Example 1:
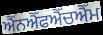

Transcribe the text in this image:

ਐੱਨਐੱਫਐੱਚਐੱਮ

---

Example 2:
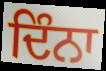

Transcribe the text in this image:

ਦਿੰਨਾ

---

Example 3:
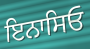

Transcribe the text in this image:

ਇਨਾਸਿਓ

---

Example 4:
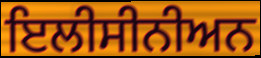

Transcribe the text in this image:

ਇਲੀਸੀਨੀਅਨ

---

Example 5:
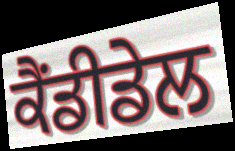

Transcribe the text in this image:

ਕੈਂਡੀਡੇਲ